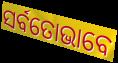
ସର୍ବତୋଭାବେ